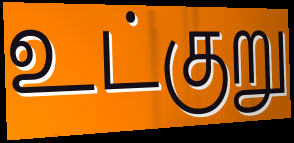
உட்குறு